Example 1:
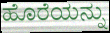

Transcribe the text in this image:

ಹೊರೆಯನ್ನು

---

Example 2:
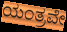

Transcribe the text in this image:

ಯಂತ್ರವೇ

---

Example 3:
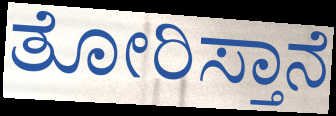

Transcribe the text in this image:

ತೋರಿಸ್ತಾನೆ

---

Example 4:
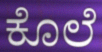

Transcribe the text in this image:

ಕೊಲೆ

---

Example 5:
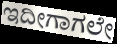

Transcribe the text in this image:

ಇದೀಗಾಗಲೇ